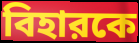
বিহারকে